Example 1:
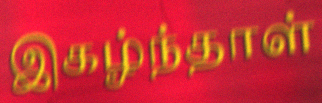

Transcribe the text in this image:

இகழ்ந்தாள்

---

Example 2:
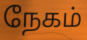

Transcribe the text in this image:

நேகம்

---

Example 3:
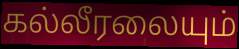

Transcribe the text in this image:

கல்லீரலையும்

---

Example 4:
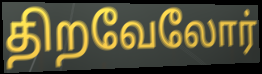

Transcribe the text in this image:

திறவேலோர்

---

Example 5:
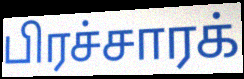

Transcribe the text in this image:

பிரச்சாரக்